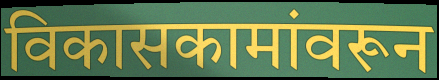
विकासकामांवरून